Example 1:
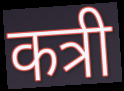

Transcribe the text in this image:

कत्री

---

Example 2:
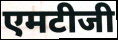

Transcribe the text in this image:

एमटीजी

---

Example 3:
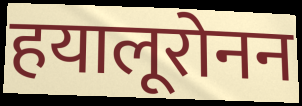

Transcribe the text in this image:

हयालूरोनन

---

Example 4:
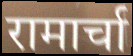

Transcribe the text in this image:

रामार्चा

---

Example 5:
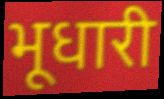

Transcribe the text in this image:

भूधारी